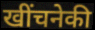
खींचनेकी